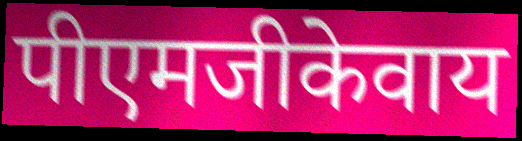
पीएमजीकेवाय